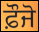
ਫ਼ੌਜੋ